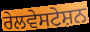
ਰੇਲਵੇਸਟੇਸ਼ਨ